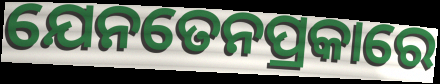
ଯେନତେନପ୍ରକାରେ